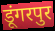
डूंगरपुर